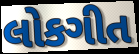
લોકગીત